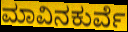
ಮಾವಿನಕುರ್ವೆ